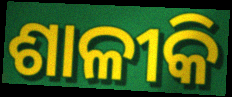
ଶାଳୀକି